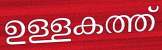
ഉള്ളകത്ത്